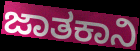
ಜಾತಕಾನಿ